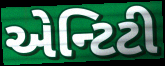
એન્ટિટી